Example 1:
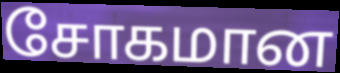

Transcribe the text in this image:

சோகமான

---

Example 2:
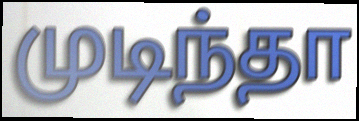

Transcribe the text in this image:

முடிந்தா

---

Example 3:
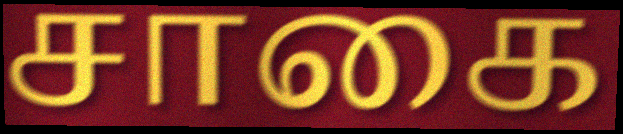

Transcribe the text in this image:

சாகை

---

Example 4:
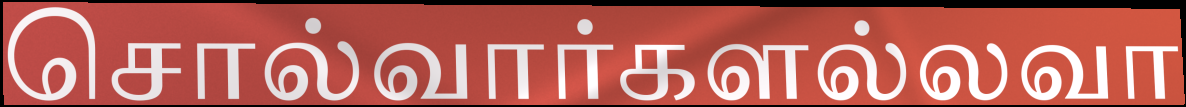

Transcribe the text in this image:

சொல்வார்களல்லவா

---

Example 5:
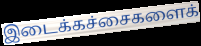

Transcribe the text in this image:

இடைக்கச்சைகளைக்